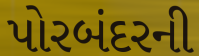
પોરબંદરની